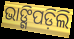
ଭାଙ୍ଗିପଡ଼ିଲି